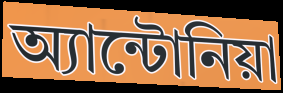
অ্যান্টোনিয়া